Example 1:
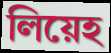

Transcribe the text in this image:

লিয়েহ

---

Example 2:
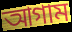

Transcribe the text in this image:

আগাম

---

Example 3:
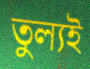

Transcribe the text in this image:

তুল্যই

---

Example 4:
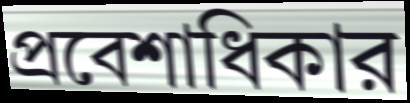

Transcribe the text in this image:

প্রবেশাধিকার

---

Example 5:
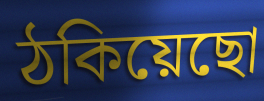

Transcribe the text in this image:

ঠকিয়েছো